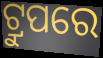
ଟ୍ରୁପରେ